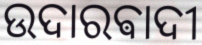
ଉଦାରଵାଦୀ